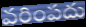
వరింపదు